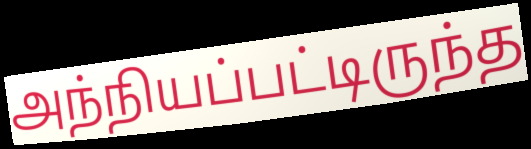
அந்நியப்பட்டிருந்த